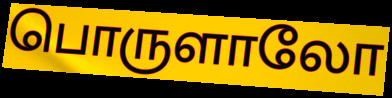
பொருளாலோ